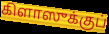
கிளாஸுக்குப்